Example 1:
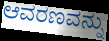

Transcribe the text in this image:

ಆವರಣವನ್ನು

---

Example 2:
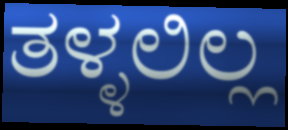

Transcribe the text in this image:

ತಳ್ಳಲಿಲ್ಲ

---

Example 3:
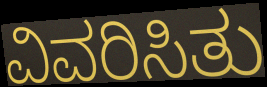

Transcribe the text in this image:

ವಿವರಿಸಿತು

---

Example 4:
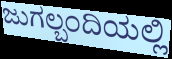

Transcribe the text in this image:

ಜುಗಲ್ಬಂದಿಯಲ್ಲಿ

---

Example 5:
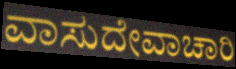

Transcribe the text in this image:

ವಾಸುದೇವಾಚಾರಿ